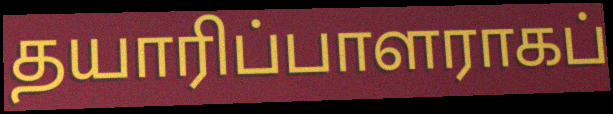
தயாரிப்பாளராகப்